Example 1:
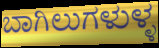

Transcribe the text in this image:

ಬಾಗಿಲುಗಳುಳ್ಳ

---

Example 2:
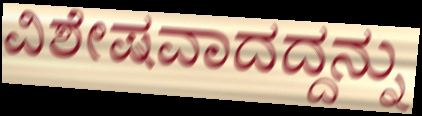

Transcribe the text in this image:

ವಿಶೇಷವಾದದ್ದನ್ನು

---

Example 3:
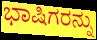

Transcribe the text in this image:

ಭಾಷಿಗರನ್ನು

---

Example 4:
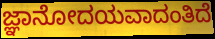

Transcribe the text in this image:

ಜ್ಞಾನೋದಯವಾದಂತಿದೆ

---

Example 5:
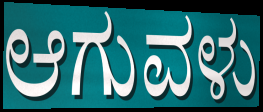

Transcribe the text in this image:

ಆಗುವಳು